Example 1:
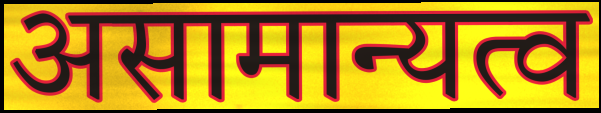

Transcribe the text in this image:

असामान्यत्व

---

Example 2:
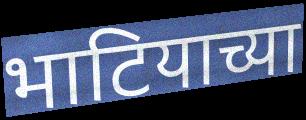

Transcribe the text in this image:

भाटियाच्या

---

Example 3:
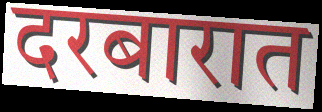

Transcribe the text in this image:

दरबारात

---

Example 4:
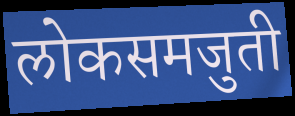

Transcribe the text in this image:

लोकसमजुती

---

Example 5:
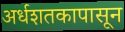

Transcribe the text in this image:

अर्धशतकापासून